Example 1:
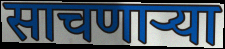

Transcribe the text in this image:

साचणार्‍या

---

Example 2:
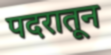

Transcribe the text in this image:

पदरातून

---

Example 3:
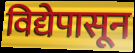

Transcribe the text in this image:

विद्येपासून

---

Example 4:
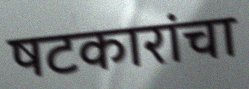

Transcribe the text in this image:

षटकारांचा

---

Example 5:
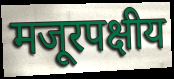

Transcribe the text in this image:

मजूरपक्षीय